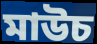
মাউচ